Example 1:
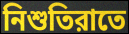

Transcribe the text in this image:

নিশুতিরাতে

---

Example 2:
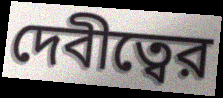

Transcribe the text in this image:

দেবীত্বের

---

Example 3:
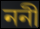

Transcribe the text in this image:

ননী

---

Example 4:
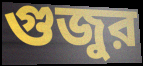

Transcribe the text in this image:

গুজুর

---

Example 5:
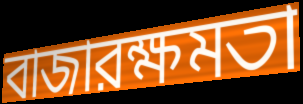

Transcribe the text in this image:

বাজারক্ষমতা